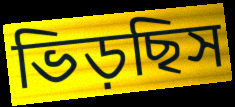
ভিড়ছিস